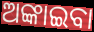
ଅଙ୍କାଇବା